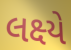
લક્ષ્યે